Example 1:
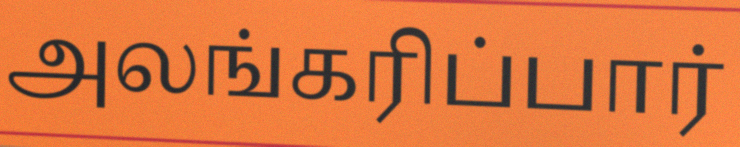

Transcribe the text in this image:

அலங்கரிப்பார்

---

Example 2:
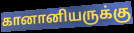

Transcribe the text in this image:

கானானியருக்கு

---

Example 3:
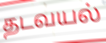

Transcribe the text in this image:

தடவயல்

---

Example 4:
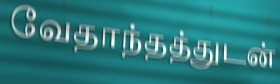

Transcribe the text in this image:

வேதாந்தத்துடன்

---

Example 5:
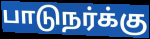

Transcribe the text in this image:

பாடுநர்க்கு